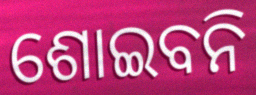
ଶୋଇବନି